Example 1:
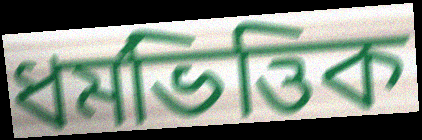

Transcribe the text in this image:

ধৰ্মভিত্তিক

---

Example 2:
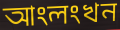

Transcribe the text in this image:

আংলংখন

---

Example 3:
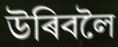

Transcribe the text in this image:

উৰিবলৈ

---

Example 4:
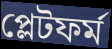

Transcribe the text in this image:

প্লেটফৰ্ম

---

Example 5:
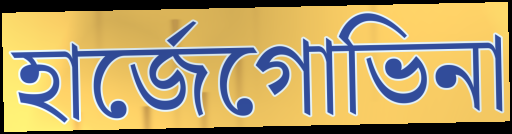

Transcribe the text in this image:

হাৰ্জেগোভিনা